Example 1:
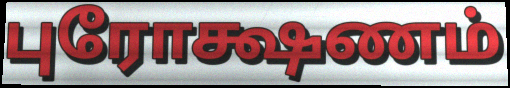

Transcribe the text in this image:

புரோக்ஷணம்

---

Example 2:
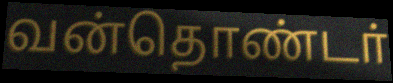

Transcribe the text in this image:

வன்தொண்டர்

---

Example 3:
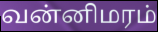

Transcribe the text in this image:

வன்னிமரம்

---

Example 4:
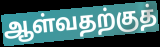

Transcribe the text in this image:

ஆள்வதற்குத்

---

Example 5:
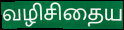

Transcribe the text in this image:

வழிசிதைய